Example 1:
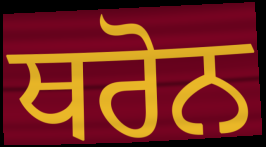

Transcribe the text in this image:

ਥਰੋਨ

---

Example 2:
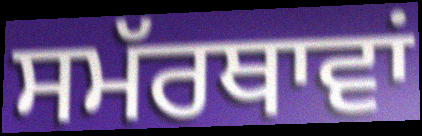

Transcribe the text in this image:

ਸਮੱਰਥਾਵਾਂ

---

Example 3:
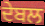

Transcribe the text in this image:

ਦੇਬਲ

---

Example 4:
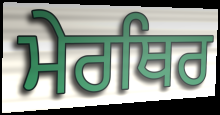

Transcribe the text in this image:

ਮੇਰਥਿਰ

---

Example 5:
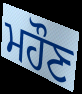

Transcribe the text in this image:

ਮਹੌਣ